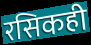
रसिकही